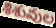
శిశువుల